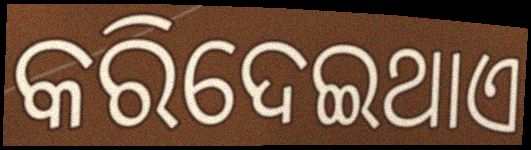
କରିଦେଇଥାଏ